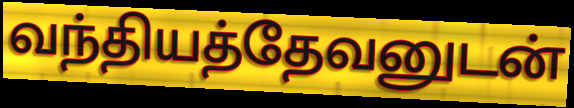
வந்தியத்தேவனுடன்